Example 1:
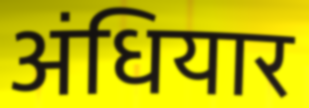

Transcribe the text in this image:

अंधियार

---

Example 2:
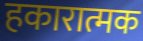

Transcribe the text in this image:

हकारात्मक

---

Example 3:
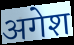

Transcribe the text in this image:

अगेश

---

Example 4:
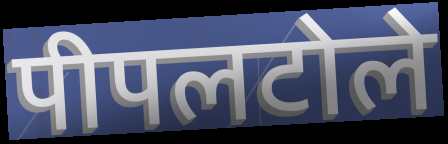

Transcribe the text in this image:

पीपलटोले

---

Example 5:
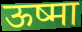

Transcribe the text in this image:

ऊष्‍मा